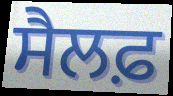
ਸੈਲਫ਼